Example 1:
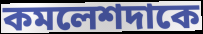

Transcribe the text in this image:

কমলেশদাকে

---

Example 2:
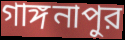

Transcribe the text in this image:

গাঙ্গনাপুর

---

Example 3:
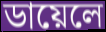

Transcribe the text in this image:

ডায়েলে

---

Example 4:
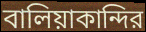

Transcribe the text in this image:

বালিয়াকান্দির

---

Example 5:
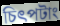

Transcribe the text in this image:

চিৎপটাং